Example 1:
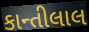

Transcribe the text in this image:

કાન્તીલાલ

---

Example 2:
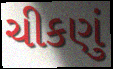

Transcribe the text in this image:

ચીકણું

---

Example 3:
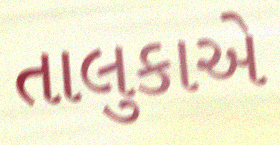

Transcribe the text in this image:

તાલુકાએ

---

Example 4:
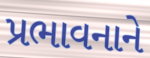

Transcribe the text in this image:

પ્રભાવનાને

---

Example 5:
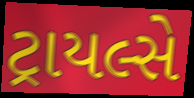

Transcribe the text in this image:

ટ્રાયલ્સે